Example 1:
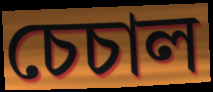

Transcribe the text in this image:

চেচাল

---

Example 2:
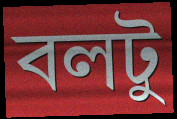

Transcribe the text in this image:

বলটু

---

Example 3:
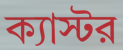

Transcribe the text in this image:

ক্যাস্টর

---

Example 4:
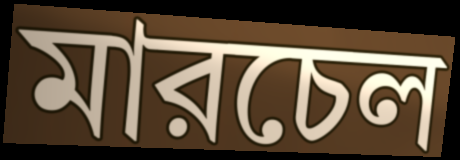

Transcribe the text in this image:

মারচেল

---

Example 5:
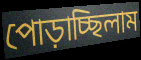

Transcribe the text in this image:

পোড়াচ্ছিলাম